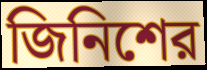
জিনিশের